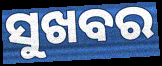
ସୁଖବର